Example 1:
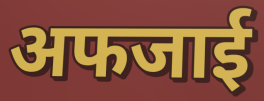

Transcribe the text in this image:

अफजाई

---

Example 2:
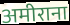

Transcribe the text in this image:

अमीराना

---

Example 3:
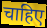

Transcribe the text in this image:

चाहिए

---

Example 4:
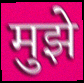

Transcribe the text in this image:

मुझे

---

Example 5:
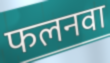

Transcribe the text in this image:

फलनवा